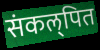
संकल्पित